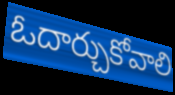
ఓదార్చుకోవాలి